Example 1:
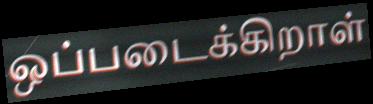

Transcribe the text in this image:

ஒப்படைக்கிறாள்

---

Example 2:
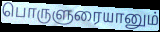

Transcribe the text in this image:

பொருளுரையானும்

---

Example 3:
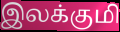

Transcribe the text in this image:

இலக்குமி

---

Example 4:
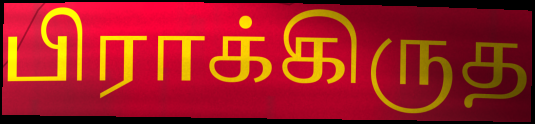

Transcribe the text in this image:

பிராக்கிருத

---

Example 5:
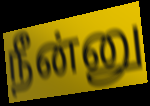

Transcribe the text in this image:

நீன்னு